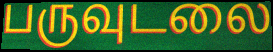
பருவுடலை